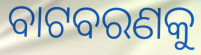
ବାଟବରଣକୁ